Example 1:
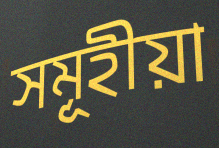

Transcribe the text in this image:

সমূহীয়া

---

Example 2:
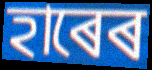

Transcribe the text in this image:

হাৰেৰ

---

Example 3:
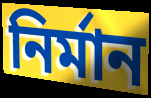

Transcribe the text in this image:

নিৰ্মান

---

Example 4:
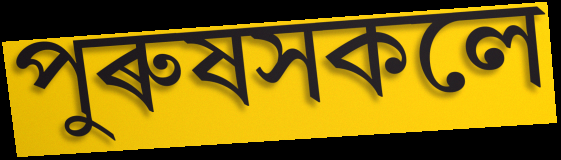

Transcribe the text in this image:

পুৰুষসকলে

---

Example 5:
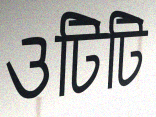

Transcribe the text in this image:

ওটিটি